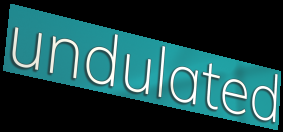
undulated